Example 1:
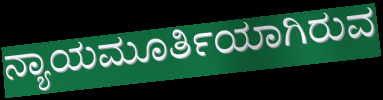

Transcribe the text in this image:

ನ್ಯಾಯಮೂರ್ತಿಯಾಗಿರುವ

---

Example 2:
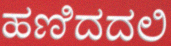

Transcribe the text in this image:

ಹಣಿದದಲಿ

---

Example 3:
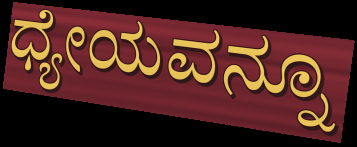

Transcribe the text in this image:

ಧ್ಯೇಯವನ್ನೂ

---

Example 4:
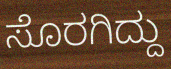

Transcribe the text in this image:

ಸೊರಗಿದ್ದು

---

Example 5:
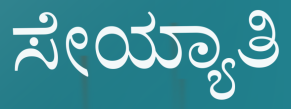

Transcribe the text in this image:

ಸೇಯ್ಯಾತಿ